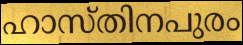
ഹാസ്തിനപുരം